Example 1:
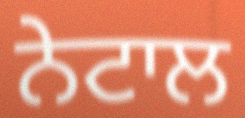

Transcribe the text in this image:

ਨੇਟਾਲ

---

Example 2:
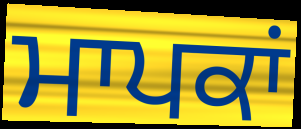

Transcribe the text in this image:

ਮਾਪਕਾਂ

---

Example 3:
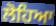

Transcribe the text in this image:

ਲੋਹਿਆ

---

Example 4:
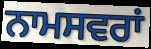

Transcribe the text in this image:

ਨਾਮਸਵਰਾਂ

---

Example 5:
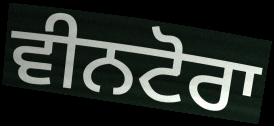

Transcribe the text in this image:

ਵੀਨਟੋਰਾ